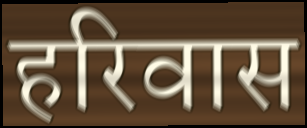
हरिवास